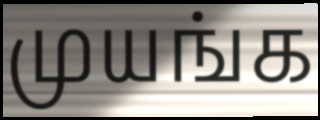
முயங்க